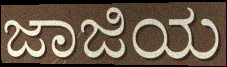
ಜಾಜಿಯ